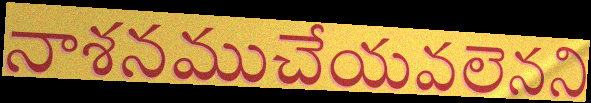
నాశనముచేయవలెనని